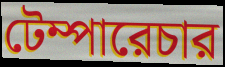
টেম্পারেচার